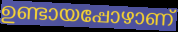
ഉണ്ടായപ്പോഴാണ്